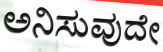
ಅನಿಸುವುದೇ